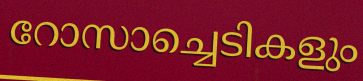
റോസാച്ചെടികളും